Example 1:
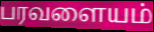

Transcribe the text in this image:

பரவளையம்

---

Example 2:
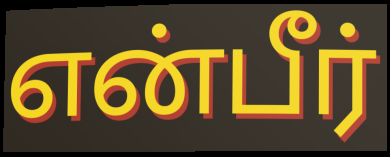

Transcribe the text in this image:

என்பீர்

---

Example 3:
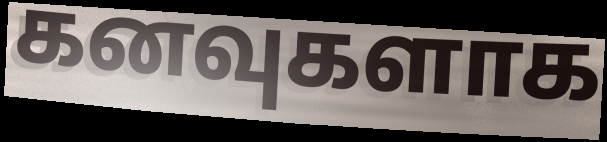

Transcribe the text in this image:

கனவுகளாக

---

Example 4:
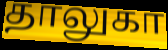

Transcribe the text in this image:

தாலுகா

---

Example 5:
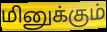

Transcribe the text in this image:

மினுக்கும்